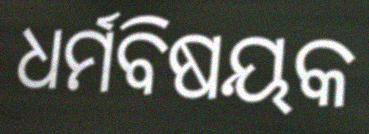
ଧର୍ମବିଷୟକ